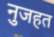
नुजहत